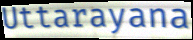
Uttarayana